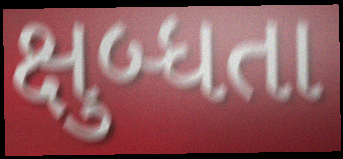
ક્ષુબ્ધતા